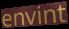
envint